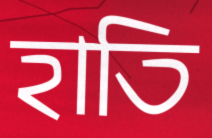
হাতি